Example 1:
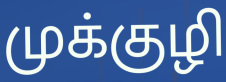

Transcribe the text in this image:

முக்குழி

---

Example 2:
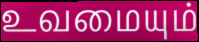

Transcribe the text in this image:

உவமையும்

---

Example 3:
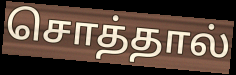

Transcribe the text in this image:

சொத்தால்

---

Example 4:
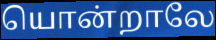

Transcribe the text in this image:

யொன்றாலே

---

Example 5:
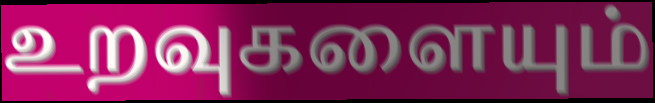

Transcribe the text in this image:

உறவுகளையும்